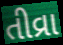
તીવ્રા